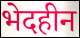
भेदहीन